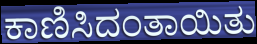
ಕಾಣಿಸಿದಂತಾಯಿತು